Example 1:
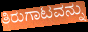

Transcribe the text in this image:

ತಿರುಗಾಟವನ್ನು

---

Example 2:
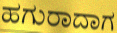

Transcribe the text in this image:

ಹಗುರಾದಾಗ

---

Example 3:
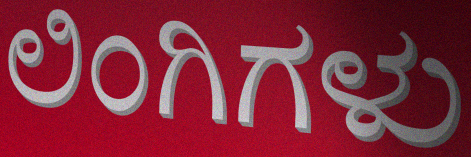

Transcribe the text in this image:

ಲಿಂಗಿಗಳು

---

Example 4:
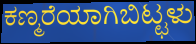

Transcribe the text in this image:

ಕಣ್ಮರೆಯಾಗಿಬಿಟ್ಟಳು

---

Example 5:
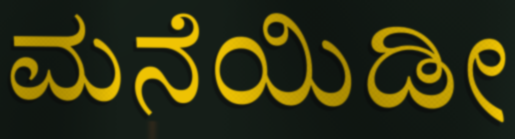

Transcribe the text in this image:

ಮನೆಯಿಡೀ